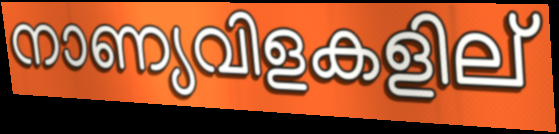
നാണ്യവിളകളില്